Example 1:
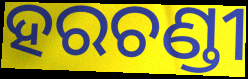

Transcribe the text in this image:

ହରଚଣ୍ଡୀ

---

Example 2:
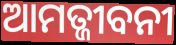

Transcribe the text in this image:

ଆମତ୍ଜୀବନୀ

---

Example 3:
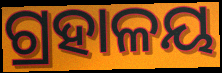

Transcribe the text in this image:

ଗ୍ରହାଳୟ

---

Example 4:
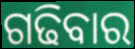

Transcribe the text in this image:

ଗଢିବାର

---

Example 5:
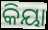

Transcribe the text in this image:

କିୟା